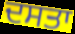
ਦਸਤਾ